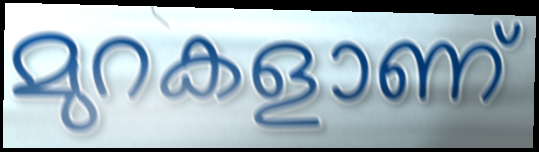
മുറകളാണ്